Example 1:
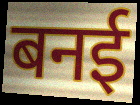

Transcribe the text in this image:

बनई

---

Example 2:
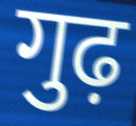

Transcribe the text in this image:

गुढ़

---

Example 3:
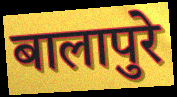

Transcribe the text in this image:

बालापुरे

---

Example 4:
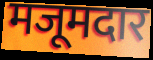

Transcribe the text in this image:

मजूमदार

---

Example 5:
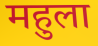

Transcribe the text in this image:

महुला